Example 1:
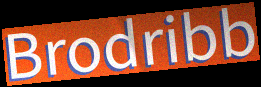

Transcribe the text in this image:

Brodribb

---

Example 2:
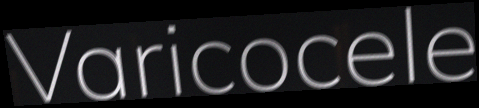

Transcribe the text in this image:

Varicocele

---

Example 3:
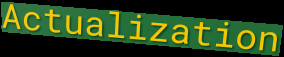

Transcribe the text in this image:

Actualization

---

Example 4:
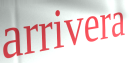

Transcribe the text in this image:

arrivera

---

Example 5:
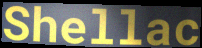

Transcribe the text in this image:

Shellac